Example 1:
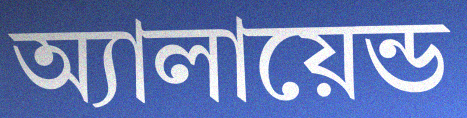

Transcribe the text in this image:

অ্যালায়েন্ড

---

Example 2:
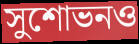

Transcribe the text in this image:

সুশোভনও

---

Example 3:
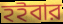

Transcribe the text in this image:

হইবার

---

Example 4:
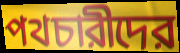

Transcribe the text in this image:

পথচারীদের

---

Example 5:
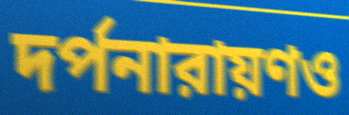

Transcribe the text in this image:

দর্পনারায়ণও